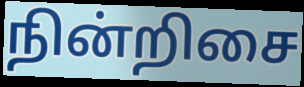
நின்றிசை